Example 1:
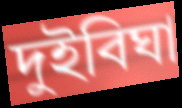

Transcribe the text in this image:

দুইবিঘা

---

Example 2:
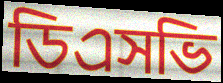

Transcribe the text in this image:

ডিএসভি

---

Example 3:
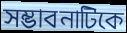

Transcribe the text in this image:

সম্ভাবনাটিকে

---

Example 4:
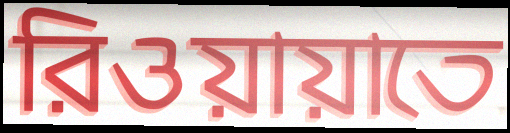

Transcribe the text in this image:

রিওয়ায়াতে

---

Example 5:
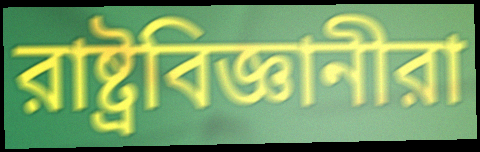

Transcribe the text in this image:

রাষ্ট্রবিজ্ঞানীরা